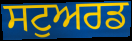
ਸਟੁਅਰਡ